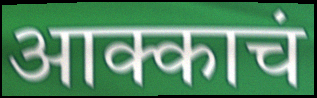
आक्काचं